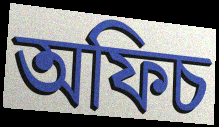
অফিচ